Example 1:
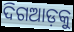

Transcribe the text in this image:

ଦିଗଆଡ଼କୁ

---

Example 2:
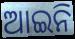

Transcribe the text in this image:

ଆଇନି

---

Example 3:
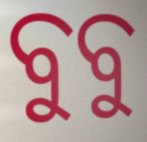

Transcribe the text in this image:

ବୁବୁ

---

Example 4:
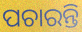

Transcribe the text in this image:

ପଚାରନ୍ତି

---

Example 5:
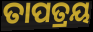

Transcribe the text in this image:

ତାପତ୍ରୟ